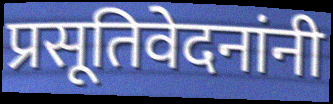
प्रसूतिवेदनांनी